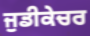
ਜੁਡੀਕੇਚਰ